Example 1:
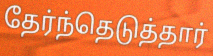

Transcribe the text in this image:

தேர்ந்தெடுத்தார்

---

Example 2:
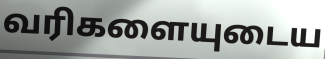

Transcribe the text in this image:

வரிகளையுடைய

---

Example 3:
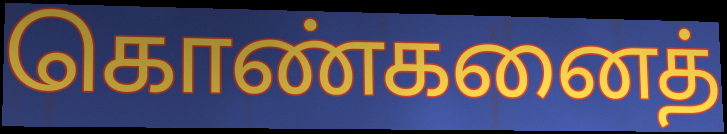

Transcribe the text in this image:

கொண்கனைத்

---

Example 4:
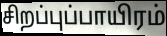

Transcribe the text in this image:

சிறப்புப்பாயிரம்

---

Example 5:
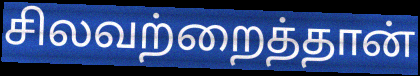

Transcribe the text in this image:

சிலவற்றைத்தான்